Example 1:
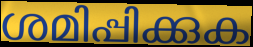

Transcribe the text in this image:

ശമിപ്പിക്കുക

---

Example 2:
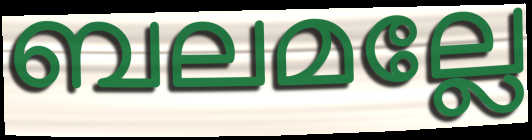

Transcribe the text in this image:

ബലമല്ലേ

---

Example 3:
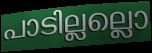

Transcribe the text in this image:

പാടില്ലല്ലൊ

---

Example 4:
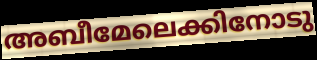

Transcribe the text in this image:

അബീമേലെക്കിനോടു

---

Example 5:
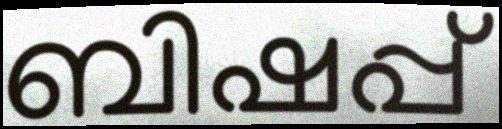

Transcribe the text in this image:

ബിഷപ്പ്